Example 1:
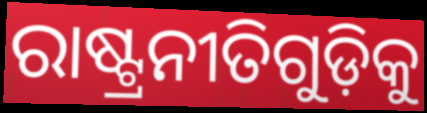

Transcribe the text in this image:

ରାଷ୍ଟ୍ରନୀତିଗୁଡ଼ିକୁ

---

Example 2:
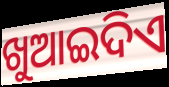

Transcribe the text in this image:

ଖୁଆଇଦିଏ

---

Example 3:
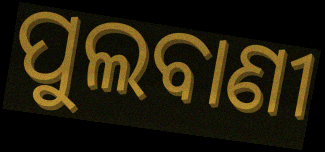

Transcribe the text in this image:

ପୁଲବାଣୀ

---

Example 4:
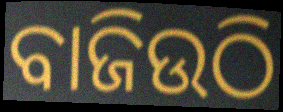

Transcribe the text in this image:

ବାଜିଉଠି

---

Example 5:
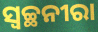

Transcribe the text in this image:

ସ୍ୱଚ୍ଛନୀରା